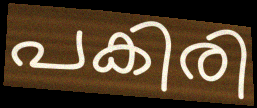
പകിരി